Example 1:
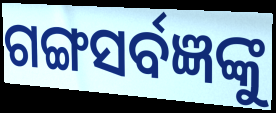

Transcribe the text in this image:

ଗଙ୍ଗସର୍ବଜ୍ଞଙ୍କୁ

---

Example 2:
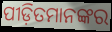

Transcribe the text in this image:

ପୀଡ଼ିତମାନଙ୍କର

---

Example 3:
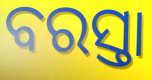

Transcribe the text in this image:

ବରସ୍ତା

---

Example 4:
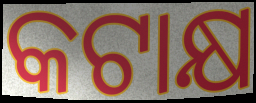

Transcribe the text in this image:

କଟାକ୍ଷ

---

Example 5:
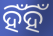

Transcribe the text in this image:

ହିଁହିଁ